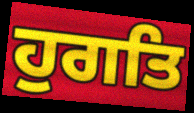
ਹੁਗਤਿ